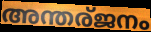
അന്തര്ജനം